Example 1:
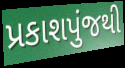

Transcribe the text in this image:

પ્રકાશપુંજથી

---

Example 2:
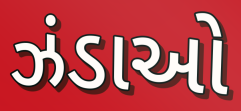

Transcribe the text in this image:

ઝંડાઓ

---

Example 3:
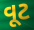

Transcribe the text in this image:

વૂટ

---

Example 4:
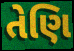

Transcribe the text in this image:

તેણિ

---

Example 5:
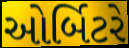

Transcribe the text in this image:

ઓર્બિટરે